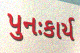
પુનઃકાર્ય